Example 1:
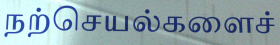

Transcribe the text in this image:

நற்செயல்களைச்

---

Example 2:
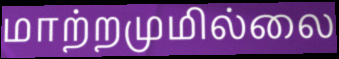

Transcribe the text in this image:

மாற்றமுமில்லை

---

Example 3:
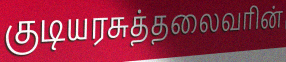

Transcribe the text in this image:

குடியரசுத்தலைவரின்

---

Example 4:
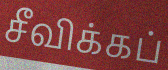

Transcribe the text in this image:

சீவிக்கப்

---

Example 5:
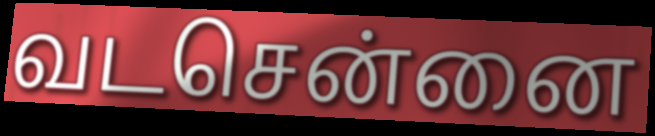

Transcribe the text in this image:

வடசென்னை